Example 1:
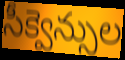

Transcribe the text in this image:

సీక్వెన్సుల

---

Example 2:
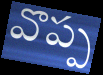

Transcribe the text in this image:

వొప్ప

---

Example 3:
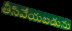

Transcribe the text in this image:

తీసివేయబడును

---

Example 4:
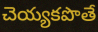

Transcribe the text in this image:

చెయ్యకపొతే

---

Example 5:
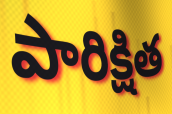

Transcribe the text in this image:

పారిక్షిత